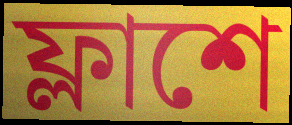
ফ্লাশে